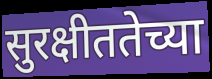
सुरक्षीततेच्या